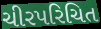
ચીરપરિચિત